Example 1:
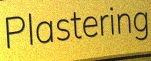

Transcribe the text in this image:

Plastering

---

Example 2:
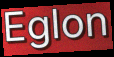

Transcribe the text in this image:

Eglon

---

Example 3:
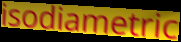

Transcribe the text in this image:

isodiametric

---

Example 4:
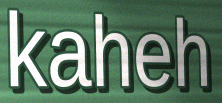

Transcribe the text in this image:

kaheh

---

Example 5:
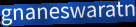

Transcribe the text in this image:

gnaneswaratn